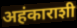
अहंकाराशी